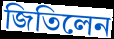
জিতিলেন